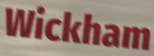
Wickham